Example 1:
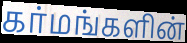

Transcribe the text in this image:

கர்மங்களின்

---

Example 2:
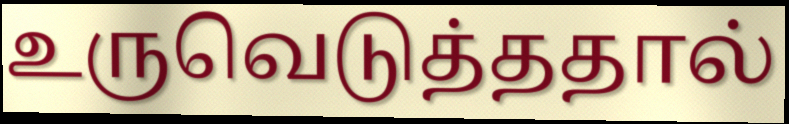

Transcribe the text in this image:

உருவெடுத்ததால்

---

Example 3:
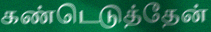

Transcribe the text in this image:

கண்டெடுத்தேன்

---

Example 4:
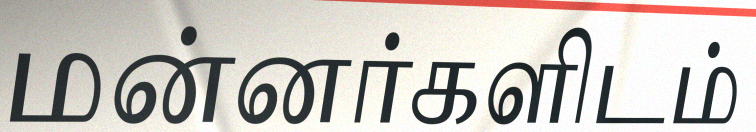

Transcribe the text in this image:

மன்னர்களிடம்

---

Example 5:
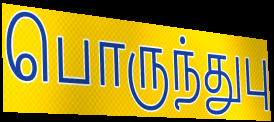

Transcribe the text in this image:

பொருந்துபு